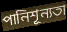
পানিশূন্যতা